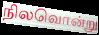
நிலவொன்று